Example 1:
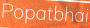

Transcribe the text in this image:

Popatbhai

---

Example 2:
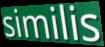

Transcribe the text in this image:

similis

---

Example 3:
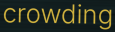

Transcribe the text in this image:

crowding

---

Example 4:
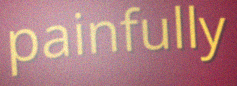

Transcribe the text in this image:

painfully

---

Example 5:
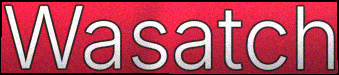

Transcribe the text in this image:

Wasatch